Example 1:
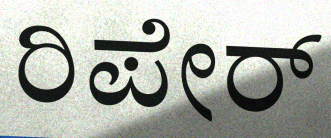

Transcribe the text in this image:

ರಿಪೇರ್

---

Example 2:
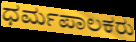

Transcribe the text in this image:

ಧರ್ಮಪಾಲಕರು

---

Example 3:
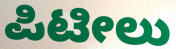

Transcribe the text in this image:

ಪಿಟೀಲು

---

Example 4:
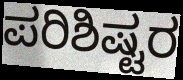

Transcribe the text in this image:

ಪರಿಶಿಷ್ಟರ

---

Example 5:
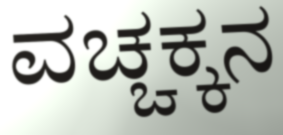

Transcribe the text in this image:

ವಚ್ಚಕ್ಕನ